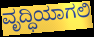
ವೃದ್ಧಿಯಾಗಲಿ